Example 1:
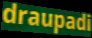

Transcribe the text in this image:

draupadi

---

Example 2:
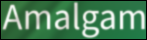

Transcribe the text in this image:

Amalgam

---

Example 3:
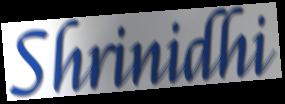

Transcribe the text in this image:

Shrinidhi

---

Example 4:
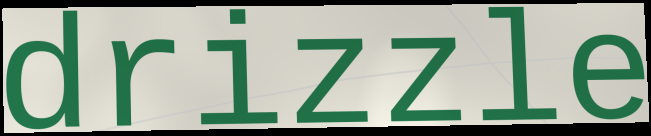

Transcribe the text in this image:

drizzle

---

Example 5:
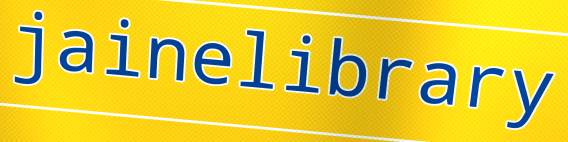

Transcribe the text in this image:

jainelibrary